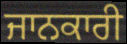
ਜਾਨਕਾਰੀ